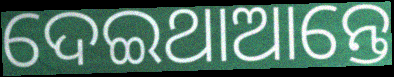
ଦେଇଥାଆନ୍ତେ